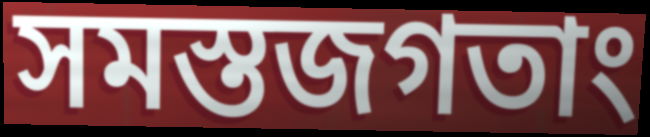
সমস্তজগতাং